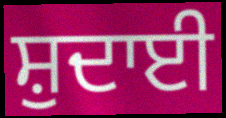
ਸ਼ੁਦਾਈ